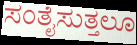
ಸಂತೈಸುತ್ತಲೂ